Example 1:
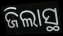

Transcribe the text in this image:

ଜିଲାସ୍ଥ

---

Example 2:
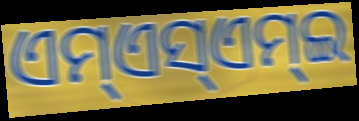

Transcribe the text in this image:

ଏମ୍ଏସ୍ଏମ୍ଇ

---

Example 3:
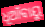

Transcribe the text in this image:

ଧୂଆଁବାୟୁ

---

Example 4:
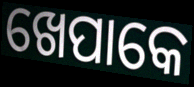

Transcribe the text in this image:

ଖେପାକେ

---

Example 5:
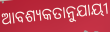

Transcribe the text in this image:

ଆବଶ୍ୟକତାନୁଯାୟୀ